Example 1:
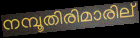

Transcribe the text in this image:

നമ്പൂതിരിമാരില്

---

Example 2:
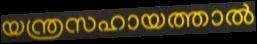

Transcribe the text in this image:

യന്ത്രസഹായത്താൽ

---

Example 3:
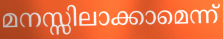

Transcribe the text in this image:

മനസ്സിലാക്കാമെന്ന്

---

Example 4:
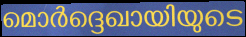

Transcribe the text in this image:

മൊർദ്ദെഖായിയുടെ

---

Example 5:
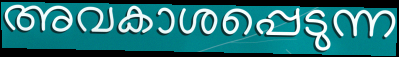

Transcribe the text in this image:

അവകാശപ്പെടുന്ന